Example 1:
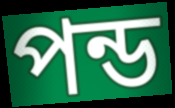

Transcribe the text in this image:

পন্ড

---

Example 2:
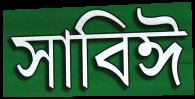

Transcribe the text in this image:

সাবিঈ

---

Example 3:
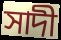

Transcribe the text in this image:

সাদী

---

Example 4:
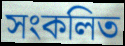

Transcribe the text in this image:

সংকলিত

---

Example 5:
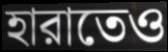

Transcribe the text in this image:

হারাতেও